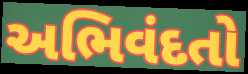
અભિવંદતો